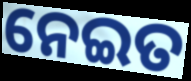
ନେଇତ